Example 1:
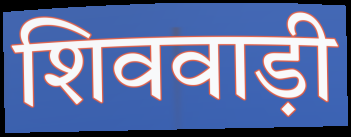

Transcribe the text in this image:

शिववाड़ी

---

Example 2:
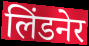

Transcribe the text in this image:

लिंडनेर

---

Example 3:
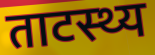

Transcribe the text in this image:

ताटस्थ्य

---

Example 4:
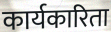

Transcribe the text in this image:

कार्यकारिता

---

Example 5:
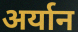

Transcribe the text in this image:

अर्यान